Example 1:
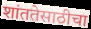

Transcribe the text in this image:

शांततेसाठीचा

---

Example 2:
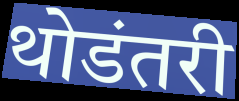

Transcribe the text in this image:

थोडंतरी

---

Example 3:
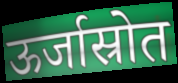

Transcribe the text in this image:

ऊर्जास्रोत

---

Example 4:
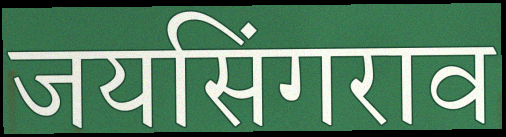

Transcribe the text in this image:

जयसिंगराव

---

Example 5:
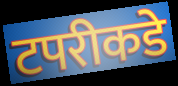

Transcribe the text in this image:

टपरीकडे